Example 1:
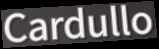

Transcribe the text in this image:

Cardullo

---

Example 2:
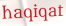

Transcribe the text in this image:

haqiqat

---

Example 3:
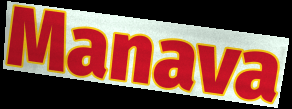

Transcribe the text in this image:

Manava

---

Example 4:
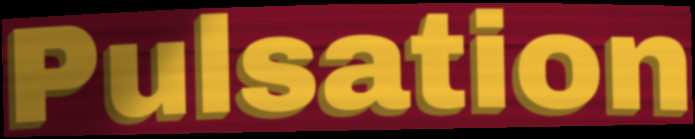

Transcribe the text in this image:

Pulsation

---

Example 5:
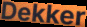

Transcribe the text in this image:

Dekker